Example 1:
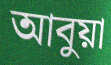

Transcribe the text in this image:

আবুয়া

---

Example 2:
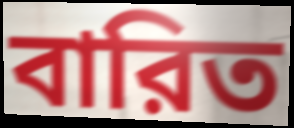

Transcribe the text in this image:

বারিত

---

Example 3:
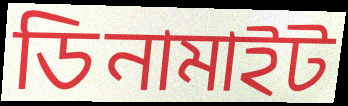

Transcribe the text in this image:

ডিনামাইট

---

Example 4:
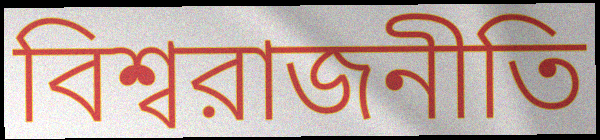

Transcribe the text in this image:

বিশ্বরাজনীতি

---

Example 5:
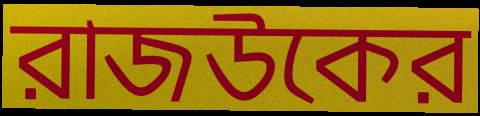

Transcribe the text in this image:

রাজউকের